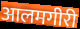
आलमगीरी